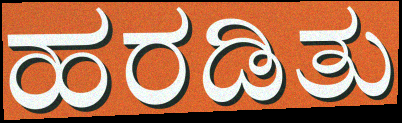
ಹರಡಿತು